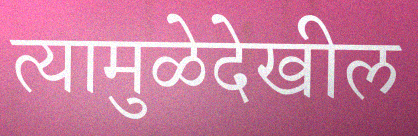
त्यामुळेदेखील